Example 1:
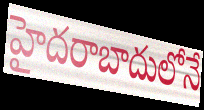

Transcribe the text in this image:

హైదరాబాదులోనే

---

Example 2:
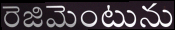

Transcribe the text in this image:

రెజిమెంటును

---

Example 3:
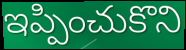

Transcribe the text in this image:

ఇప్పించుకొని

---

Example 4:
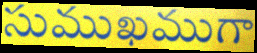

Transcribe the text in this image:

సుముఖముగా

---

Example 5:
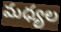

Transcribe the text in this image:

మధ్యల